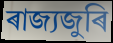
ৰাজ্যজুৰি